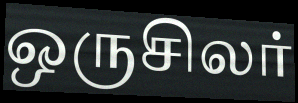
ஒருசிலர்